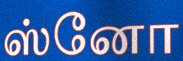
ஸ்னோ